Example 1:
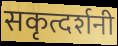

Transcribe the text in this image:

सकृत्दर्शनी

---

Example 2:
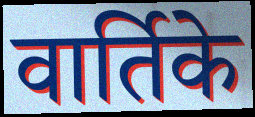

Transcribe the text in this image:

वार्तिके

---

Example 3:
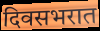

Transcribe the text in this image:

दिवसभरात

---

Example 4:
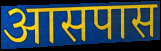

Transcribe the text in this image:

आसपास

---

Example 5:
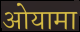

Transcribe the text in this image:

ओयामा